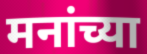
मनांच्या